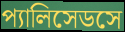
প্যালিসেডসে